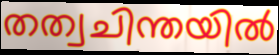
തത്വചിന്തയിൽ